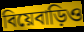
বিয়েবাড়িও